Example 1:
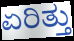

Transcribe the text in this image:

ಏರಿತ್ತು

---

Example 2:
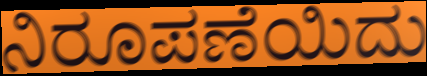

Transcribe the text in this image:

ನಿರೂಪಣೆಯಿದು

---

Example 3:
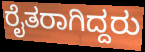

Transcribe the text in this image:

ರೈತರಾಗಿದ್ದರು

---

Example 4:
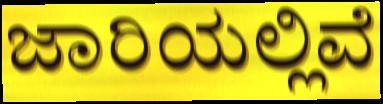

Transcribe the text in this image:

ಜಾರಿಯಲ್ಲಿವೆ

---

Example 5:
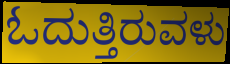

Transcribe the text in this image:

ಓದುತ್ತಿರುವಳು